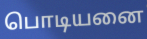
பொடியனை